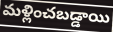
మళ్లించబడ్డాయి